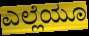
ಎಲ್ಲೆಯೂ